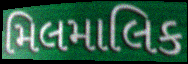
મિલમાલિક